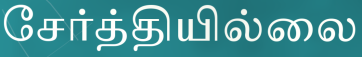
சேர்த்தியில்லை